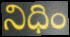
నిధిం